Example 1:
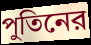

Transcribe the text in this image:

পুতিনের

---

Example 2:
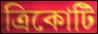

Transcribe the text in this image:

ত্রিকোটি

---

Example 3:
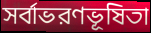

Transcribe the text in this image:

সর্বাভরণভূষিতা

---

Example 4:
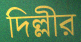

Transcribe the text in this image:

দিল্লীর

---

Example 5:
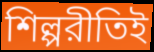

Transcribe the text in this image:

শিল্পরীতিই